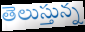
తెలుస్తున్న